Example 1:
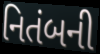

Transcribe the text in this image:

નિતંબની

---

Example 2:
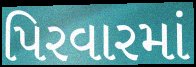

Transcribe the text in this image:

પિરવારમાં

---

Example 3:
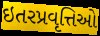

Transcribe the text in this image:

ઇતરપ્રવૃત્તિઓ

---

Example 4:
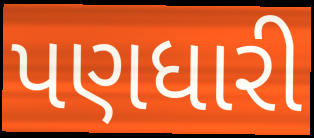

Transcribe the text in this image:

પણધારી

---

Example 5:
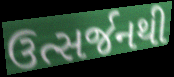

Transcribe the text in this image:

ઉત્સર્જનથી